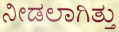
ನೀಡಲಾಗಿತ್ತು